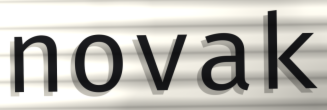
novak